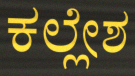
ಕಲ್ಲೇಶ